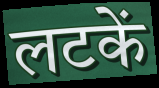
लटकें